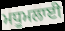
ਮਧੂਮਲਾਈ